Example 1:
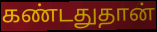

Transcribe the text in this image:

கண்டதுதான்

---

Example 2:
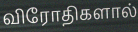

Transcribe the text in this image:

விரோதிகளால்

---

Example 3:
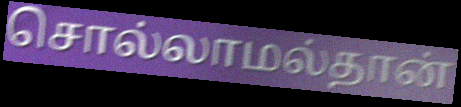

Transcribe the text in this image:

சொல்லாமல்தான்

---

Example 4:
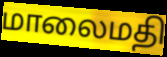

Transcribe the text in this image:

மாலைமதி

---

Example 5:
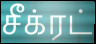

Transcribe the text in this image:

சீக்ரட்